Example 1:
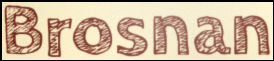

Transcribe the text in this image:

Brosnan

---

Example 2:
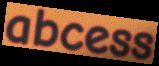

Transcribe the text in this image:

abcess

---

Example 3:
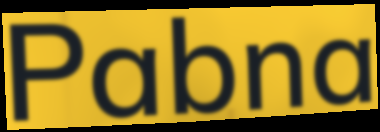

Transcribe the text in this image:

Pabna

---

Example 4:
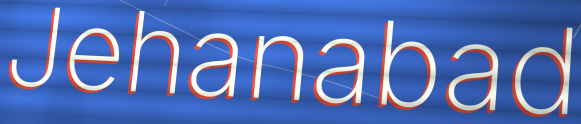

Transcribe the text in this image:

Jehanabad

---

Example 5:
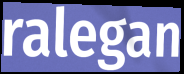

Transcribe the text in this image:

ralegan